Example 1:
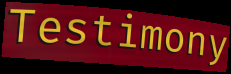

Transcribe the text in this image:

Testimony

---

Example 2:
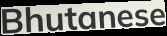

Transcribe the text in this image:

Bhutanese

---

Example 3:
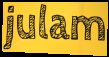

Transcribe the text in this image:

julam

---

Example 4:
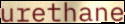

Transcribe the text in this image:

urethane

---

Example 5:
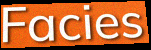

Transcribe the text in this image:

Facies